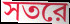
সতরে